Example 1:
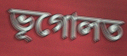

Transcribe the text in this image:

ভূগোলত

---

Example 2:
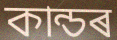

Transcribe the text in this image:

কান্ডৰ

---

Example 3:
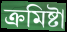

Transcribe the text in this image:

ক্ৰমিষ্টা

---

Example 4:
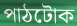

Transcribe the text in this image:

পাঠটোক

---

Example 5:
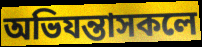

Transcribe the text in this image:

অভিযন্তাসকলে